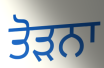
ਤੋੜਨਾ